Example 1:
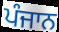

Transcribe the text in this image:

ਪੰਜਾਨ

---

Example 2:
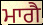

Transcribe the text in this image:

ਮਾਗੈ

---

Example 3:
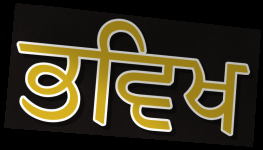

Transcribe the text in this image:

ਭਵਿਖ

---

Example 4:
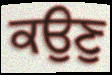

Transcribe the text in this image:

ਕਉਣੁ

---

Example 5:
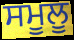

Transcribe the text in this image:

ਸਮੂਲੂ